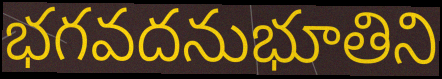
భగవదనుభూతిని